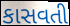
કાસવતી